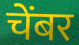
चेंबर